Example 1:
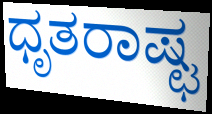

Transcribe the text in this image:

ಧೃತರಾಷ್ಟ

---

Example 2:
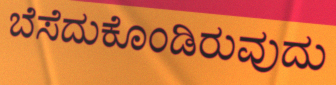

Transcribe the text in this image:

ಬೆಸೆದುಕೊಂಡಿರುವುದು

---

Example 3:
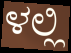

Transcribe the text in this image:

ಳಲ್ಲಿ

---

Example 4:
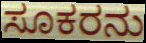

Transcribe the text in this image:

ಸೂಕರನು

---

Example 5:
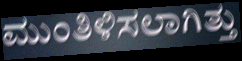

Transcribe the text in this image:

ಮುಂತಿಳಿಸಲಾಗಿತ್ತು